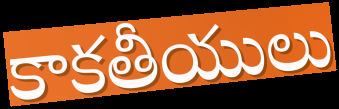
కాకతీయులు